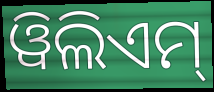
ୱିଲିଏମ୍